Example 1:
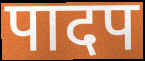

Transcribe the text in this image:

पादप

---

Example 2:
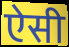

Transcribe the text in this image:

ऐसी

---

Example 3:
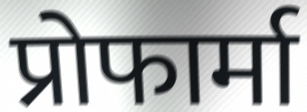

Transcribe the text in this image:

प्रोफार्मा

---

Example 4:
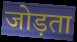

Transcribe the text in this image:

जोड़ता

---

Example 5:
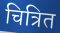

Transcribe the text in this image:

चित्रित